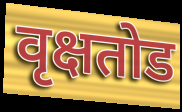
वृक्षतोड